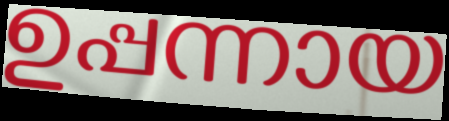
ഉപ്പന്നായ